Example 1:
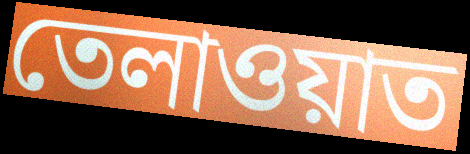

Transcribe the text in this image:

তেলাওয়াত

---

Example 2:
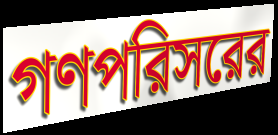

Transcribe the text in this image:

গণপরিসরের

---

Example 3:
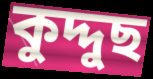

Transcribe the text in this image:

কুদ্দুছ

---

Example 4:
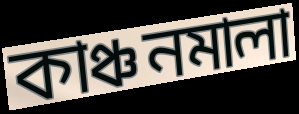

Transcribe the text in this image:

কাঞ্চনমালা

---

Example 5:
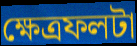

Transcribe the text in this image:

ক্ষেত্রফলটা